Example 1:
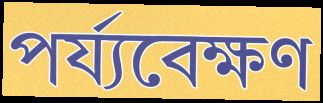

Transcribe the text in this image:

পৰ্য্যবেক্ষণ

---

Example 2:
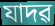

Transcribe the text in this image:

যাদৱ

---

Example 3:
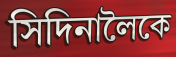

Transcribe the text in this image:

সিদিনালৈকে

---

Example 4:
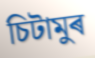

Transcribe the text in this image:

চিটামুৰ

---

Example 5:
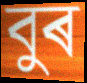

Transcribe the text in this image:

বুৰ